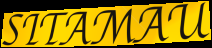
SITAMAU